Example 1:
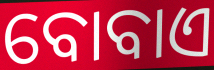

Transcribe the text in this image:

ବୋବାଏ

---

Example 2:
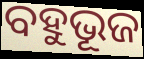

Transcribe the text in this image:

ବହୁଭୂଜ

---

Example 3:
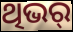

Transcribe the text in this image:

ଥିଭର୍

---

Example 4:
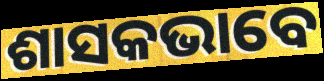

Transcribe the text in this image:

ଶାସକଭାବେ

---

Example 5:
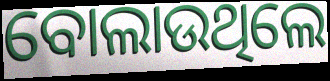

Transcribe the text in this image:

ବୋଲାଉଥିଲେ